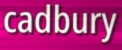
cadbury